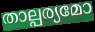
താല്പര്യമോ